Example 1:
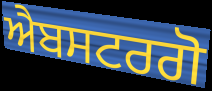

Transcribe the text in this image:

ਐਬਸਟਰਗੋ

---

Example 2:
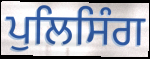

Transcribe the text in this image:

ਪੁਲਿਸਿੰਗ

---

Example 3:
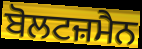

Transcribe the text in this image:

ਬੋਲਟਜ਼ਮੈਨ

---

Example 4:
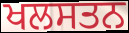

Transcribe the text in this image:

ਖਲਸਤਨ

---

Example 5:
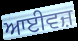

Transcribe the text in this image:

ਆਈਵਜ਼